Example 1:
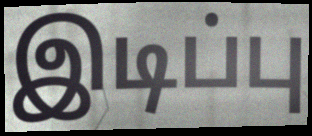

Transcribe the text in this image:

இடிப்பு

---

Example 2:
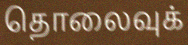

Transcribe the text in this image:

தொலைவுக்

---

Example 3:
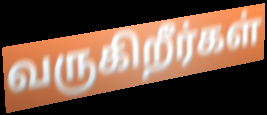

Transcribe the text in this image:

வருகிறீர்கள்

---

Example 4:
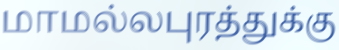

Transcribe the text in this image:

மாமல்லபுரத்துக்கு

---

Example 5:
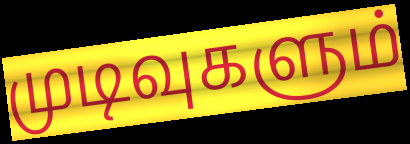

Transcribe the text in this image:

முடிவுகளும்